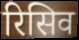
रिसिव